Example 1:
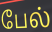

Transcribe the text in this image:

பேல்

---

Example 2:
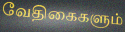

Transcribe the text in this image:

வேதிகைகளும்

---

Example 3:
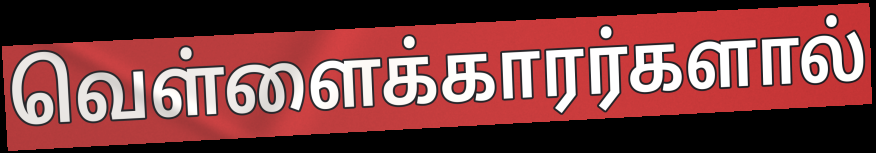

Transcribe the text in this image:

வெள்ளைக்காரர்களால்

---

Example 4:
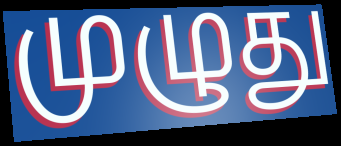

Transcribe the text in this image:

முழுது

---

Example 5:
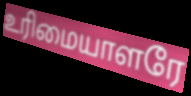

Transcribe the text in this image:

உரிமையாளரே